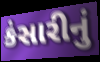
કંસારીનું